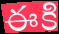
ఈకి